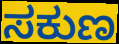
ಸಕುಣ